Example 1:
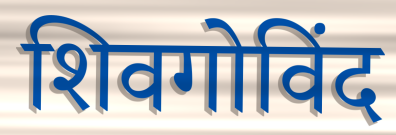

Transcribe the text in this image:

शिवगोविंद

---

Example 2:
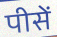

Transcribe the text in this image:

पीसें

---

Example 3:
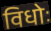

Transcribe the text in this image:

विधोः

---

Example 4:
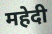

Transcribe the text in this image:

महेदी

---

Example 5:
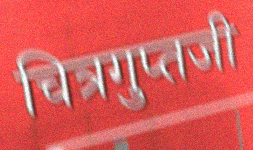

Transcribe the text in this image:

चित्रगुप्तजी